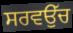
ਸਰਵਉੱਚ